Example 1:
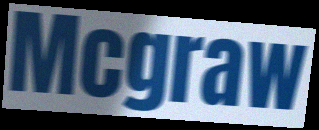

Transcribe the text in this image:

Mcgraw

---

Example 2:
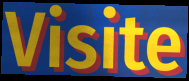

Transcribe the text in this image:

Visite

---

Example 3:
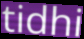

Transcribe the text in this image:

tidhi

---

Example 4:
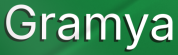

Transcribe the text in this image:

Gramya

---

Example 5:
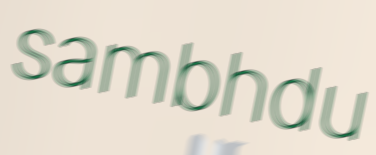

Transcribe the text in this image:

sambhdu